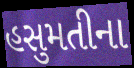
હસુમતીના